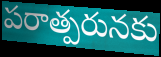
పరాత్పరునకు